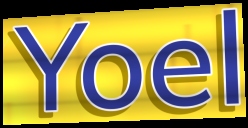
Yoel